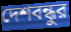
দেশবন্ধুর